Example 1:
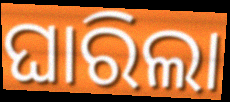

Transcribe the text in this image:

ଘାରିଲା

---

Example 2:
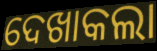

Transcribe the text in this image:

ଦେଖାକଲା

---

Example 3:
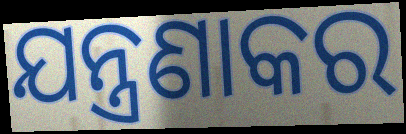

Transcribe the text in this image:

ଯନ୍ତ୍ରଣାକର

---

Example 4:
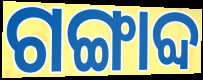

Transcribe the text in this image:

ଗଙ୍ଗାବ୍ଦ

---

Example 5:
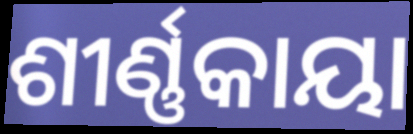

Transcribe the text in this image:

ଶୀର୍ଣ୍ଣକାୟା